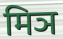
मिञ